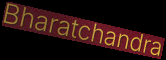
Bharatchandra